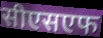
सीएसएफ